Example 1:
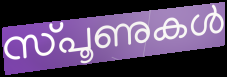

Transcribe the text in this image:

സ്പൂണുകൾ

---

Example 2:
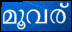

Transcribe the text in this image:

മൂവര്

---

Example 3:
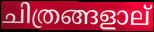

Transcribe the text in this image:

ചിത്രങ്ങളാല്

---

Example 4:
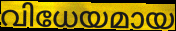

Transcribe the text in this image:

വിധേയമായ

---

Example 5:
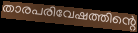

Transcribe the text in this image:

താരപരിവേഷത്തിന്റെ